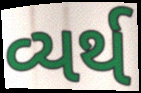
વ્યર્થ